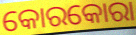
କୋରକୋରା